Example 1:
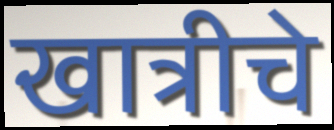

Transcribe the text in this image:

खात्रीचे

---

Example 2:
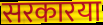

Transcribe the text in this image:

सरकारया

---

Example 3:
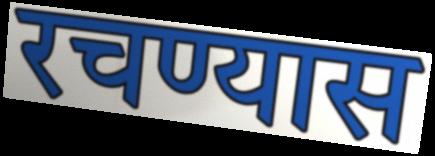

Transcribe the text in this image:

रचण्यास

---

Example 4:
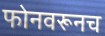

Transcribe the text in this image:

फोनवरूनच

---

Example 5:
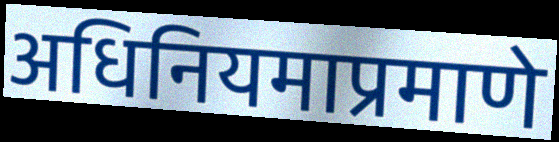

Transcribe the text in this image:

अधिनियमाप्रमाणे